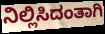
ನಿಲ್ಲಿಸಿದಂತಾಗಿ